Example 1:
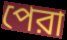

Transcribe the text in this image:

পেরা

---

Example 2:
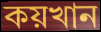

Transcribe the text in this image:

কয়খান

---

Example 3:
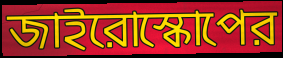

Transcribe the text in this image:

জাইরোস্কোপের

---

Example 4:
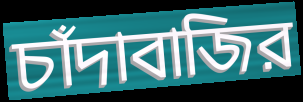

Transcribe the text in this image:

চাঁদাবাজির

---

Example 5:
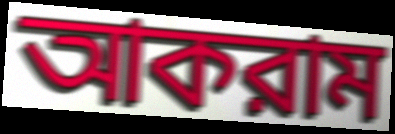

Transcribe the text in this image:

আকরাম